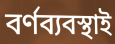
বর্ণব্যবস্থাই